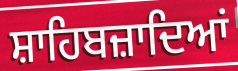
ਸ਼ਾਹਿਬਜ਼ਾਦਿਆਂ